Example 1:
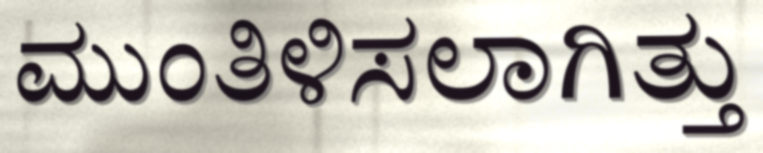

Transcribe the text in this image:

ಮುಂತಿಳಿಸಲಾಗಿತ್ತು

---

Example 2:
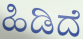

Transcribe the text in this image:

ಹಿಡಿದೆ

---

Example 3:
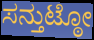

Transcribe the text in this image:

ಸನ್ತುಟ್ಠೋ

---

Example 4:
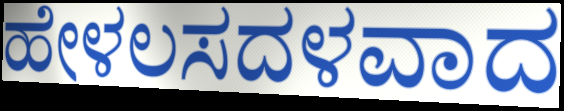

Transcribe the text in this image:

ಹೇಳಲಸದಳವಾದ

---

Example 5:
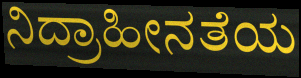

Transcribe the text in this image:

ನಿದ್ರಾಹೀನತೆಯ